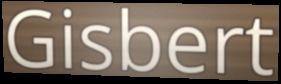
Gisbert